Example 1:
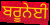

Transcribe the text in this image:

ਬਰੂਨੇਈ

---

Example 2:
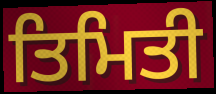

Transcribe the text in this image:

ਤਿਮਿਤੀ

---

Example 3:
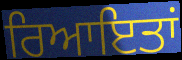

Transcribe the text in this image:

ਰਿਆਇਤਾਂ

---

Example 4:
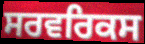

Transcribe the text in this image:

ਸਰਵਰਿਕਸ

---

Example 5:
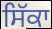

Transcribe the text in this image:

ਸਿੱਕਾ